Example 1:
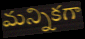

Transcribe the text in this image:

మన్నికగా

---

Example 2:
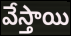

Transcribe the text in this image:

వేస్తాయి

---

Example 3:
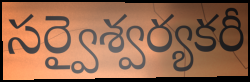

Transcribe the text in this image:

సర్వైశ్వర్యకరీ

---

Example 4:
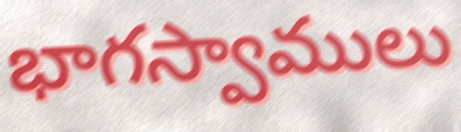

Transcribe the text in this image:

భాగస్వాములు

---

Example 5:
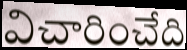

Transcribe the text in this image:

విచారించేది